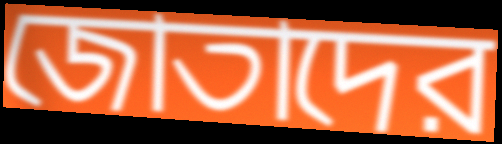
জোতাদের